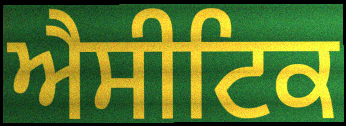
ਐਸੀਟਿਕ